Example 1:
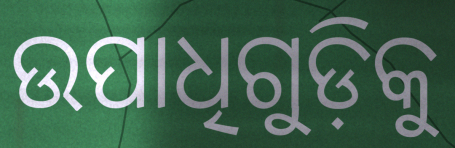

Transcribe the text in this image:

ଉପାଧିଗୁଡ଼ିକୁ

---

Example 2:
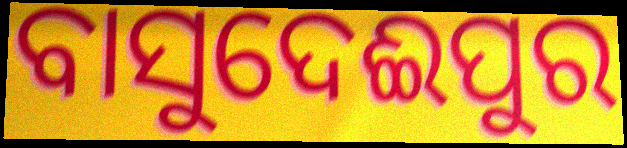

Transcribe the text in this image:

ବାସୁଦେଈପୁର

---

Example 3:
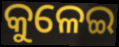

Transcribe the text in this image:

କୁଳେଇ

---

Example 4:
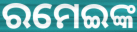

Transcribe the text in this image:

ରମେଇଙ୍କ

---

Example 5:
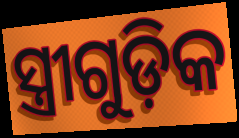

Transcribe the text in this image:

ସ୍ତ୍ରୀଗୁଡ଼ିକ